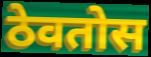
ठेवतोस